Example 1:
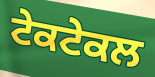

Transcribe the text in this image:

ਟੇਕਟੇਕਲ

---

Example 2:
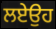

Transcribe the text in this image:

ਲਏਉਹ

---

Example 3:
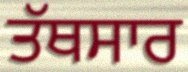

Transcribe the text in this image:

ਤੱਥਸਾਰ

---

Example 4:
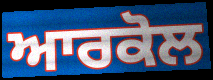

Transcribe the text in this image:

ਆਰਕੋਲ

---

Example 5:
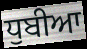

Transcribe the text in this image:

ਧੁਬੀਆ